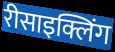
रीसाइक्लिंग